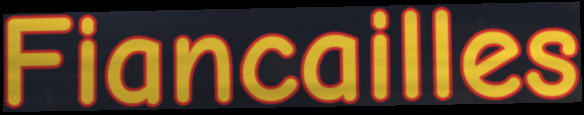
Fiancailles